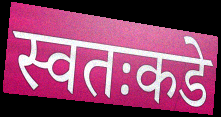
स्वतःकडे